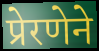
प्रेरणेने